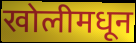
खोलीमधून